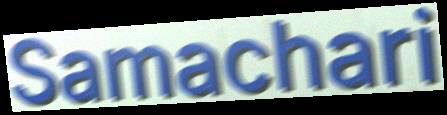
Samachari